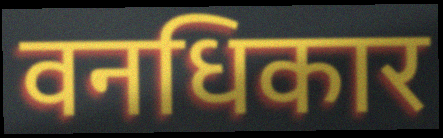
वनधिकार